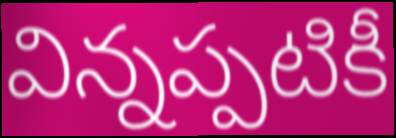
విన్నప్పటికీ